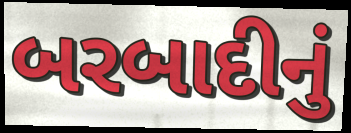
બરબાદીનું